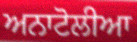
ਅਨਾਟੋਲੀਆ